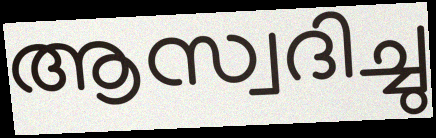
ആസ്വദിച്ചു